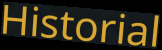
Historial